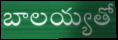
బాలయ్యతో